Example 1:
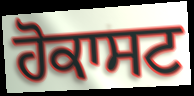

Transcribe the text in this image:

ਹੋਕਾਸਟ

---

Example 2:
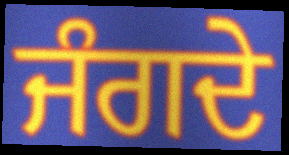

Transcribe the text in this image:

ਜੰਗਦੇ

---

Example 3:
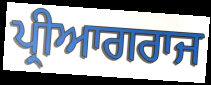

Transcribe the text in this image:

ਪ੍ਰੀਆਗਰਾਜ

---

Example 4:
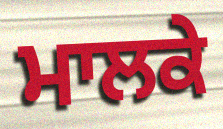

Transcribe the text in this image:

ਮਾਲਕੇ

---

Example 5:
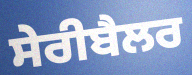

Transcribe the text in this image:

ਸੇਰੀਬੈਲਰ